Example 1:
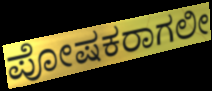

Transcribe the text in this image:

ಪೋಷಕರಾಗಲೀ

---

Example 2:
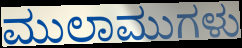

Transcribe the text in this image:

ಮುಲಾಮುಗಳು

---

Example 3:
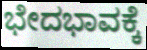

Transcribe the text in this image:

ಭೇದಭಾವಕ್ಕೆ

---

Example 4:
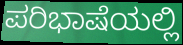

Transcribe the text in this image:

ಪರಿಭಾಷೆಯಲ್ಲಿ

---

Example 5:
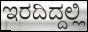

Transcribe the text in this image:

ಇರದಿದ್ದಲ್ಲಿ